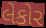
લેકોર